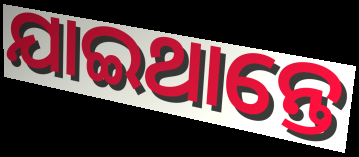
ଯାଇଥାନ୍ତେ